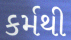
કર્મથી